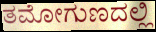
ತಮೋಗುಣದಲ್ಲಿ